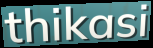
thikasi